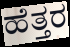
ಹೆತ್ತರ